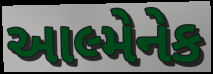
આલ્મેનેક